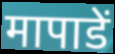
मापाडें